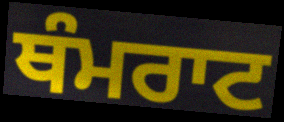
ਥੰਮਰਾਟ